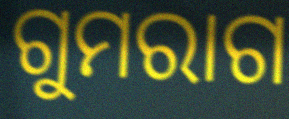
ଗୁମରାଗ